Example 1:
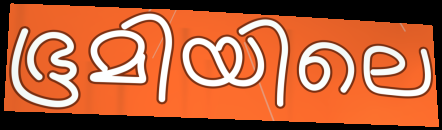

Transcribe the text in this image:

ഭൂമിയിലെ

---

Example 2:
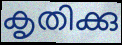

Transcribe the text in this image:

കൃതിക്കു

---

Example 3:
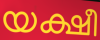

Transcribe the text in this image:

യക്ഷീ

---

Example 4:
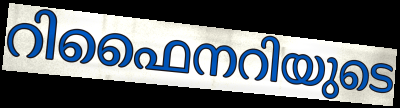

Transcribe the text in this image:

റിഫൈനറിയുടെ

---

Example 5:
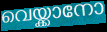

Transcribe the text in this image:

വെയ്ക്കാനോ